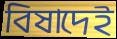
বিষাদেই